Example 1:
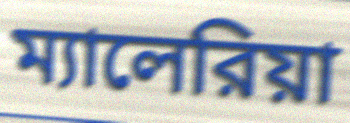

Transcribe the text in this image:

ম্যালেরিয়া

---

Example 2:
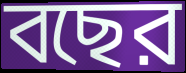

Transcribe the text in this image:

বছের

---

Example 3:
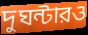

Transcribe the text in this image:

দুঘন্টারও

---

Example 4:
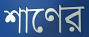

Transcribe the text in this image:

শাণের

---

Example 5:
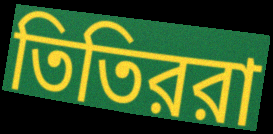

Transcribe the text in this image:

তিতিররা